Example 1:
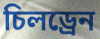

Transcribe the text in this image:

চিলড্ৰেন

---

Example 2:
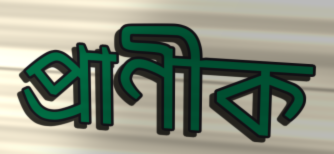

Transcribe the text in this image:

প্ৰাণীক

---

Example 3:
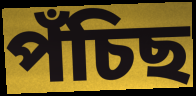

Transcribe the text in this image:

পঁচিছ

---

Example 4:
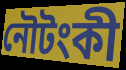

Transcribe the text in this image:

নৌটংকী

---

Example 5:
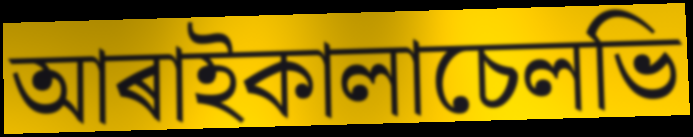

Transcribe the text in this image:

আৰাইকালাচেলভি